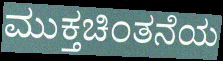
ಮುಕ್ತಚಿಂತನೆಯ